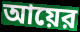
আয়ের